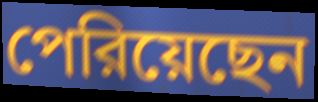
পেরিয়েছেন